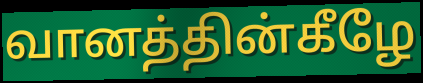
வானத்தின்கீழே